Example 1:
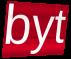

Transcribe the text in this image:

byt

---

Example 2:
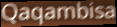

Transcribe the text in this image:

Qaqambisa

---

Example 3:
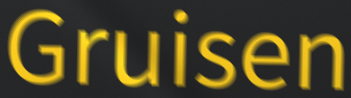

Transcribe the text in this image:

Gruisen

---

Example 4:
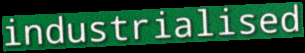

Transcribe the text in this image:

industrialised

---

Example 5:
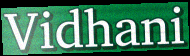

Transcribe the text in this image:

Vidhani